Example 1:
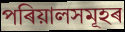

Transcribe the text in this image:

পৰিয়ালসমূহৰ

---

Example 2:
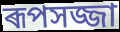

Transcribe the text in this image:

ৰূপসজ্জা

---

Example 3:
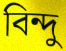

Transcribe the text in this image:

বিন্দু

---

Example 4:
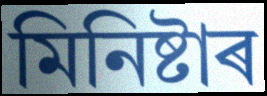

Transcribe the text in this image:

মিনিষ্টাৰ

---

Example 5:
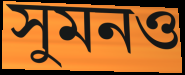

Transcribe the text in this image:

সুমনও